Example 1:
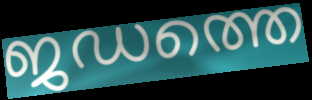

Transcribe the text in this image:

ജഡത്തെ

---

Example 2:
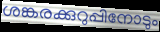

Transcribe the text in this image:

ശങ്കരക്കുറുപ്പിനോടും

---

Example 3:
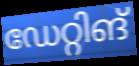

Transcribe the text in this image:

ഡേറ്റിങ്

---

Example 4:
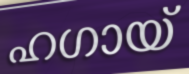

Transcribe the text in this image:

ഹഗായ്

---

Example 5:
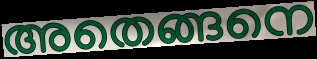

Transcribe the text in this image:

അതെങ്ങനെ